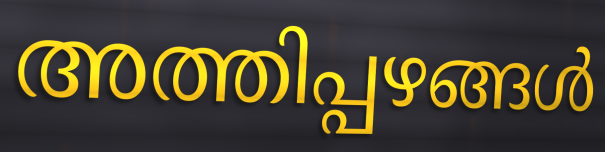
അത്തിപ്പഴങ്ങൾ